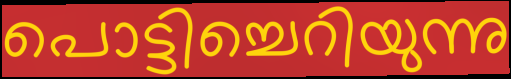
പൊട്ടിച്ചെറിയുന്നു